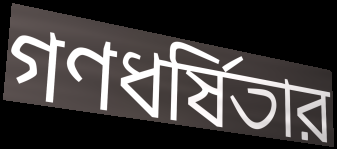
গণধর্ষিতার